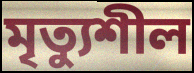
মৃত্যুশীল